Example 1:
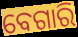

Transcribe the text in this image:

ବେଗାରି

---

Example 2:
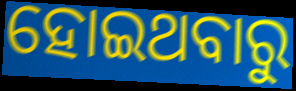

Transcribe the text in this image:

ହୋଇଥବାରୁ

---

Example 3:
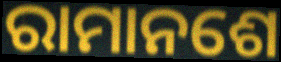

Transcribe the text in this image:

ରାମାନଶେ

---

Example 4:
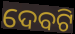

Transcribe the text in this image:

ଦେବଟି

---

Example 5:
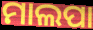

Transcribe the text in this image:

ମାଲପା